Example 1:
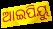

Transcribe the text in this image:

ଆଇପିୟୁ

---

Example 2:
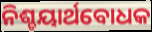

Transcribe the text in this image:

ନିଶ୍ଚୟାର୍ଥବୋଧକ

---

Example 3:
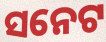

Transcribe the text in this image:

ସନେଟ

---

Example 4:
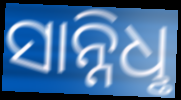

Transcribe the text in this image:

ସାନ୍ନିଧୢ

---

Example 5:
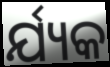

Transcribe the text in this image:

ର୍ଯ୍ୟକ